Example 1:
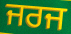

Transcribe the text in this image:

ਜਰਜ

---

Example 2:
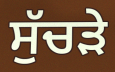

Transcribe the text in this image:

ਸੁੱਚੜੇ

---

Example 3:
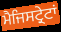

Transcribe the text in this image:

ਮੈਜਿਸਟ੍ਰੇਟਾਂ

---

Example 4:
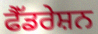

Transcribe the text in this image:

ਫੈੱਡਰੇਸ਼ਨ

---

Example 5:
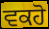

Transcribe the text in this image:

ਵਕਹੋ